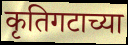
कृतिगटाच्या